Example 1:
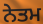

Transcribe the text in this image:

ਨੇਤਮ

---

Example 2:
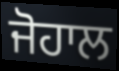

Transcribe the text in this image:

ਜੋਹਾਲ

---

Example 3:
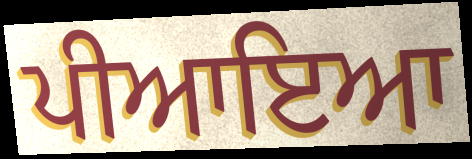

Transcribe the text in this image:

ਪੀਆਇਆ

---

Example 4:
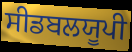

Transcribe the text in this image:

ਸੀਡਬਲਯੂਪੀ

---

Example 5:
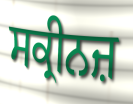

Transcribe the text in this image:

ਸਕ੍ਰੀਨਜ਼